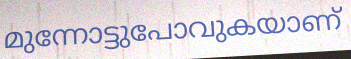
മുന്നോട്ടുപോവുകയാണ്